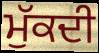
ਮੁੱਕਦੀ